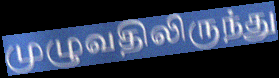
முழுவதிலிருந்து